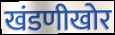
खंडणीखोर